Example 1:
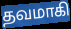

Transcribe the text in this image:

தவமாகி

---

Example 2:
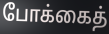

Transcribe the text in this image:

போக்கைத்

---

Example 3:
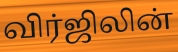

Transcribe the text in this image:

விர்ஜிலின்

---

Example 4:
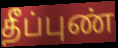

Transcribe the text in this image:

தீப்புண்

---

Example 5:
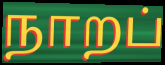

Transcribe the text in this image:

நாறப்